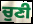
ਚੁਣੀ